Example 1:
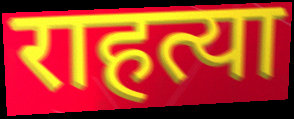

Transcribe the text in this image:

राहत्या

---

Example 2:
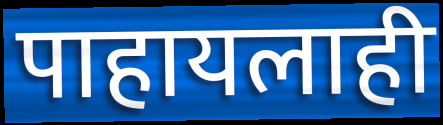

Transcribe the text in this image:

पाहायलाही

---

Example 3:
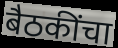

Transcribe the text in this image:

बैठकींचा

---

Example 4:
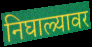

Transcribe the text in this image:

निघाल्यावर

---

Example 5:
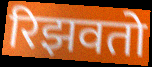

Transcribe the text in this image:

रिझवतो